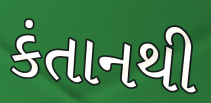
કંતાનથી